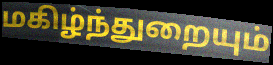
மகிழ்ந்துறையும்